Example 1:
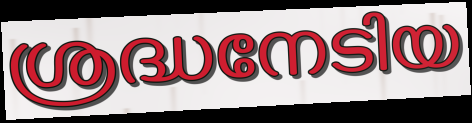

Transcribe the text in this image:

ശ്രദ്ധനേടിയ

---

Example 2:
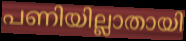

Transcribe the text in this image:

പണിയില്ലാതായി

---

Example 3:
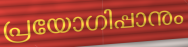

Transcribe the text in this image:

പ്രയോഗിപ്പാനും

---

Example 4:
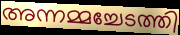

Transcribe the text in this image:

അന്നമ്മച്ചേടത്തി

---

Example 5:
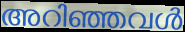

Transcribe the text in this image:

അറിഞ്ഞവൾ